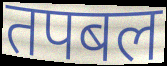
तपबल